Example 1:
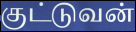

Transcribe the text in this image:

குட்டுவன்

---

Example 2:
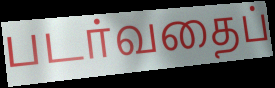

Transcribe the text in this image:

படர்வதைப்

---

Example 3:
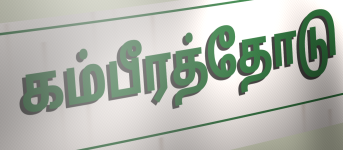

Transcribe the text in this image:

கம்பீரத்தோடு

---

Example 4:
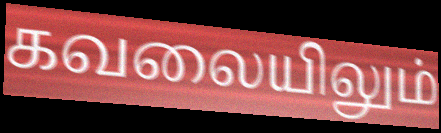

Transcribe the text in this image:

கவலையிலும்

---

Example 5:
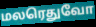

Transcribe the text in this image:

மலரெதுவோ